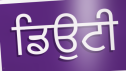
ਡਿਉਟੀ